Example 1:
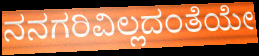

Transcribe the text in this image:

ನನಗರಿವಿಲ್ಲದಂತೆಯೇ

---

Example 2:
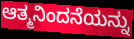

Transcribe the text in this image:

ಆತ್ಮನಿಂದನೆಯನ್ನು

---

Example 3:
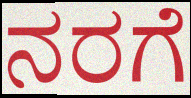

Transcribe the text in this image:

ನರಗೆ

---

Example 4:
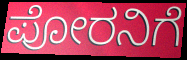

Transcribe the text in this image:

ಪೋರನಿಗೆ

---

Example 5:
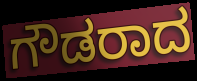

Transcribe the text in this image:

ಗೌಡರಾದ